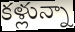
కళ్లున్నా